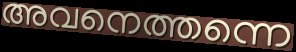
അവനെത്തന്നെ